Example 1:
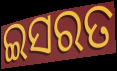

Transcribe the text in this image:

ଇସରତ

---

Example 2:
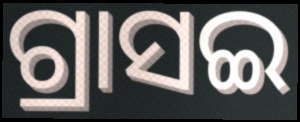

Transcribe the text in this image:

ଗ୍ରାସଇ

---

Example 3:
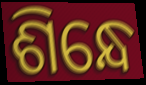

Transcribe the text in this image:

ଶିନ୍ଧେ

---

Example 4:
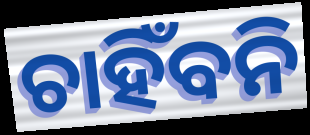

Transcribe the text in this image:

ଚାହିଁବନି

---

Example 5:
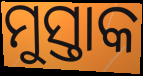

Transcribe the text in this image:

ମୁସ୍ତାକ